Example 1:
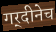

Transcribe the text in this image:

गर्दीनेच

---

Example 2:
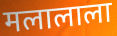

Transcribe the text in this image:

मलालाला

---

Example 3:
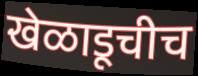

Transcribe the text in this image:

खेळाडूचीच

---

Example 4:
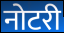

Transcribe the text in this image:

नोटरी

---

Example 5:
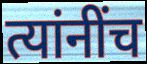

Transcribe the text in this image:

त्यांनींच